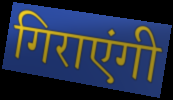
गिराएंगी